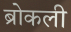
ब्रोकली